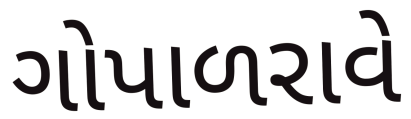
ગોપાળરાવે